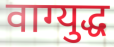
वाग्युद्ध